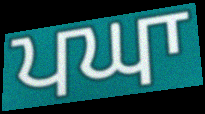
ਪਘਾ